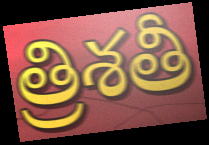
త్రిశతీ